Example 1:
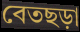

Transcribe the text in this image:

বেতছড়া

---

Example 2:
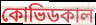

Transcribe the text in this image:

কোভিডকাল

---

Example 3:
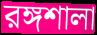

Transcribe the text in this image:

রঙ্গশালা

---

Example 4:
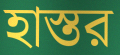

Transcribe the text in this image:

হাস্তর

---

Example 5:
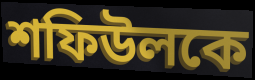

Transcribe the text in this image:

শফিউলকে